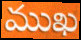
ముఖ